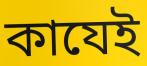
কাযেই